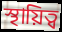
স্থায়িত্ব